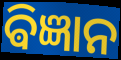
ଵିଜ୍ଞାନ